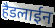
हैडलाईन